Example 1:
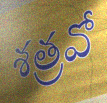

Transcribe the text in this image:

శత్రవో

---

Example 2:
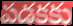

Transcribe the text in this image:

పడకకు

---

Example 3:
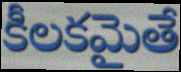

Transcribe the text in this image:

కీలకమైతే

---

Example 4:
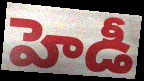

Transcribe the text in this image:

హెడీ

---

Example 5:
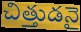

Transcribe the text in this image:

చిత్తుడనై